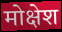
मोक्षेश